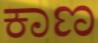
ಕಾಣ